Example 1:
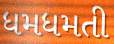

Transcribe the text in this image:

ધમધમતી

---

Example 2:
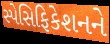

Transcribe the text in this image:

સ્પેસિફિકેશનને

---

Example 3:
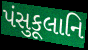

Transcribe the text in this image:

પંસુકૂલાનિ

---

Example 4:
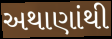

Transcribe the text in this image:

અથાણાંથી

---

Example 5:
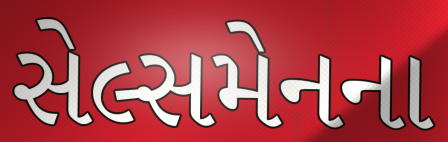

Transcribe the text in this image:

સેલ્સમેનના